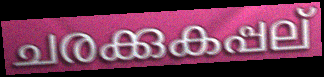
ചരക്കുകപ്പല്